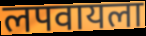
लपवायला